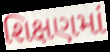
શિક્ષણમાં